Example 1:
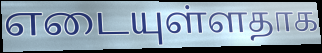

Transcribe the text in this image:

எடையுள்ளதாக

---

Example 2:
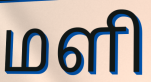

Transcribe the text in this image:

மளி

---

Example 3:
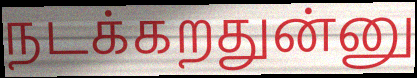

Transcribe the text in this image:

நடக்கறதுன்னு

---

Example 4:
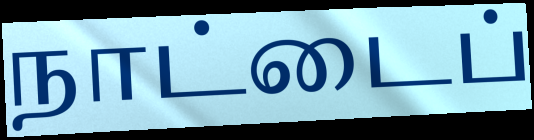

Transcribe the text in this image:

நாட்டைப்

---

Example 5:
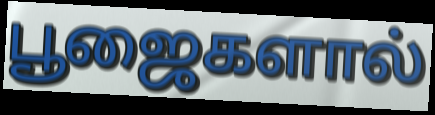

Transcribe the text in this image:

பூஜைகளால்